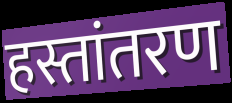
हस्तांतरण